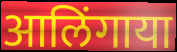
आलिंगाया